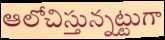
ఆలోచిస్తున్నట్టుగా